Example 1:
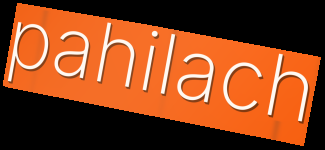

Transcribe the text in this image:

pahilach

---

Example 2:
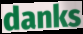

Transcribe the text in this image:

danks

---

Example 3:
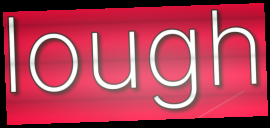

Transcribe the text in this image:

lough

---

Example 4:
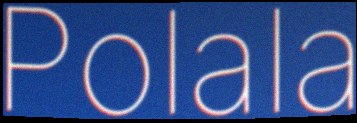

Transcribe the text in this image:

Polala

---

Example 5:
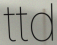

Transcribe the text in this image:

ttd